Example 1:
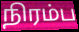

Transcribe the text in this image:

நிரம்ப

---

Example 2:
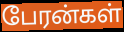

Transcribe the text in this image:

பேரன்கள்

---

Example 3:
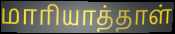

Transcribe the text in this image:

மாரியாத்தாள்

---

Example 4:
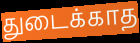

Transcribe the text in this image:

துடைக்காத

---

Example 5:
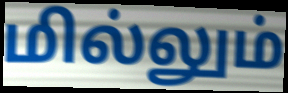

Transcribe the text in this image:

மில்லும்